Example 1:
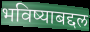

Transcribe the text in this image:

भविष्याबद्दल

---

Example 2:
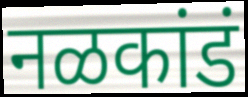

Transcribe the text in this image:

नळकांडं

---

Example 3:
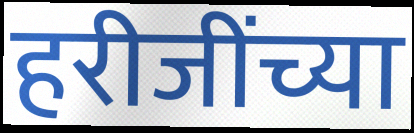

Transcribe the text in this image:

हरीजींच्या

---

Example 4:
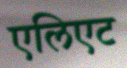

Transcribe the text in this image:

एलिएट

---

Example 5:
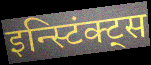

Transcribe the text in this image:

इन्स्टिंक्ट्स